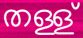
തള്ള്